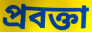
প্রবক্তা